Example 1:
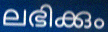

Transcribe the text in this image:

ലഭിക്കും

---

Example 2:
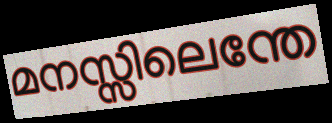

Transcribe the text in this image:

മനസ്സിലെന്തേ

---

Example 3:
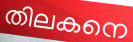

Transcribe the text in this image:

തിലകനെ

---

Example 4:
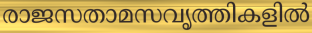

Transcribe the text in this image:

രാജസതാമസവൃത്തികളിൽ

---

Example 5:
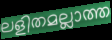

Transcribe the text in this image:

ലളിതമല്ലാത്ത